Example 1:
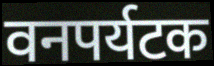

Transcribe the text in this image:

वनपर्यटक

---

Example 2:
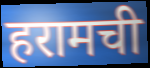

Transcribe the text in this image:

हरामची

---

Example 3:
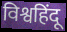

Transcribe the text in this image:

विश्वहिंदू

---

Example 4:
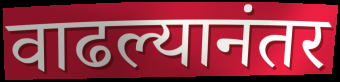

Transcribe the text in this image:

वाढल्यानंतर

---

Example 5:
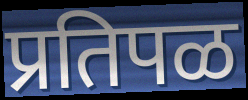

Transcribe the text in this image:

प्रतिपळ